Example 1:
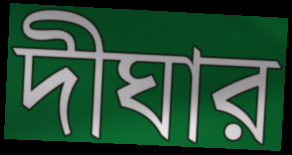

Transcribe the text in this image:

দীঘার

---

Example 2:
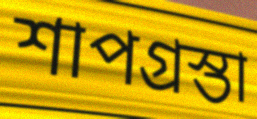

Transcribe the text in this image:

শাপগ্রস্তা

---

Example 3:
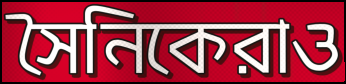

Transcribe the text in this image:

সৈনিকেরাও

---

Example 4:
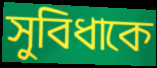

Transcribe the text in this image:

সুবিধাকে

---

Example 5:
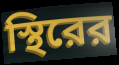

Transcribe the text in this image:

স্থিরের